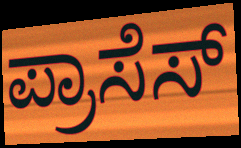
ಪ್ರಾಸೆಸ್